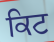
ਕਿਟ